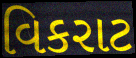
વિકરાટ